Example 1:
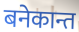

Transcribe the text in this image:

बनेकान्त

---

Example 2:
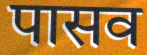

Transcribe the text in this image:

पासव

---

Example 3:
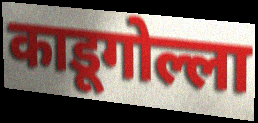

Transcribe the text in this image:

काडूगोल्ला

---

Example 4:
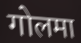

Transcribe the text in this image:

गोलमा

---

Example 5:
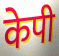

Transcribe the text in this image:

केपी